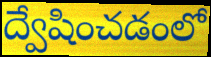
ద్వేషించడంలో